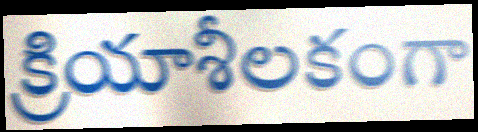
క్రియాశీలకంగా